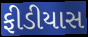
ફીડીયાસ